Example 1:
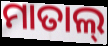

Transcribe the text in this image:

ମାତାଲ୍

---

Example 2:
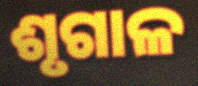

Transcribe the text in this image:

ଶୃଗାଳ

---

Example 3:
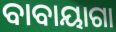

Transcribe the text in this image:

ବାବାୟାଗା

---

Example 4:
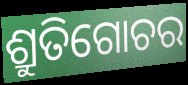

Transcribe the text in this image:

ଶ୍ରୁତିଗୋଚର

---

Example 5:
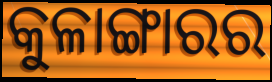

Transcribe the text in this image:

କୁଳାଙ୍ଗାରର